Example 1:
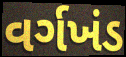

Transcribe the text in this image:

વર્ગખંડ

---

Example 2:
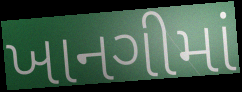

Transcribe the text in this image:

ખાનગીમાં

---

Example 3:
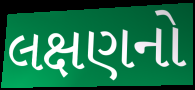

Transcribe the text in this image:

લક્ષણનો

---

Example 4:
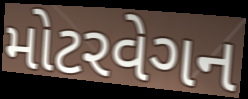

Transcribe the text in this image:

મોટરવેગન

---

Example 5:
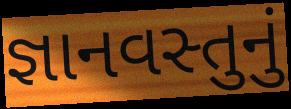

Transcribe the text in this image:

જ્ઞાનવસ્તુનું